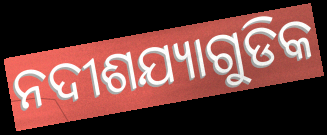
ନଦୀଶଯ୍ୟାଗୁଡିକ